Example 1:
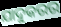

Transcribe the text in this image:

ଯାଦୁକରର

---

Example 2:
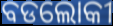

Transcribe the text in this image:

ବଡଲୋକୀ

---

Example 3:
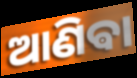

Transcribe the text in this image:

ଆଣିଵା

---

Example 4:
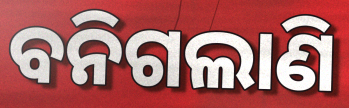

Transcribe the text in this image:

ବନିଗଲାଣି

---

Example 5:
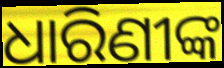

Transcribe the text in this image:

ଧାରିଣୀଙ୍କ